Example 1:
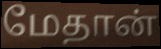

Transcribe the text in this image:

மேதான்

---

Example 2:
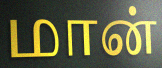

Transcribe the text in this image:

மான்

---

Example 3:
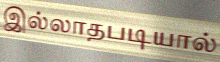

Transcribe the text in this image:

இல்லாதபடியால்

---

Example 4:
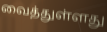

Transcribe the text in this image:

வைத்துள்ளது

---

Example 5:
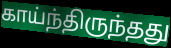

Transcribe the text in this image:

காய்ந்திருந்தது